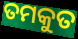
ତମକୁତ